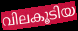
വിലകൂടിയ